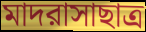
মাদরাসাছাত্র